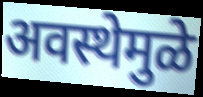
अवस्थेमुळे